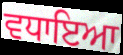
ਵਧਾਇਆ